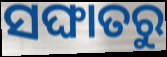
ସଙ୍ଘାତରୁ